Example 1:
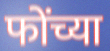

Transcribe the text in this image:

फोंच्या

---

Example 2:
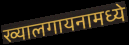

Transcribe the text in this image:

ख्यालगायनामध्ये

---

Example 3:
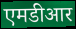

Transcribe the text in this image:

एमडीआर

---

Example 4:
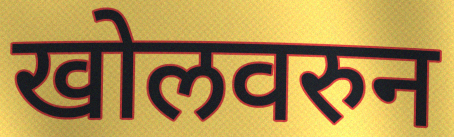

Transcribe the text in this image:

खोलवरुन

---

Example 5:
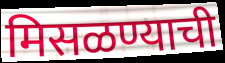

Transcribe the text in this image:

मिसळण्याची